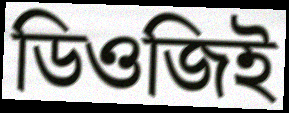
ডিওজিই